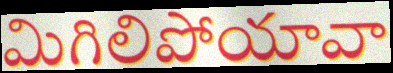
మిగిలిపోయావా